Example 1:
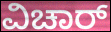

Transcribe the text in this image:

ವಿಚಾರ್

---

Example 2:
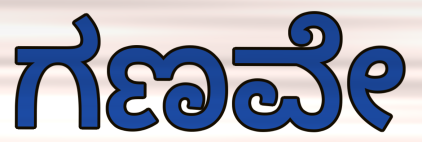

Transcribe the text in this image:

ಗಣವೇ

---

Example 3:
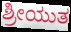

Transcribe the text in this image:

ಶ್ರೀಯುತ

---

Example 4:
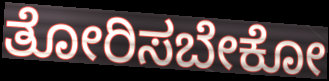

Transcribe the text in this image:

ತೋರಿಸಬೇಕೋ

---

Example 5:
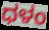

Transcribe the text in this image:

ಧಳಂ